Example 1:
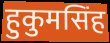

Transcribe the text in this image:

हुकुमसिंह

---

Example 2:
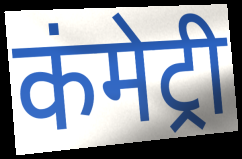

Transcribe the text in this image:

कंमेट्री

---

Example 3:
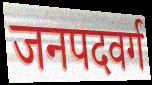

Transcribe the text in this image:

जनपदवर्ग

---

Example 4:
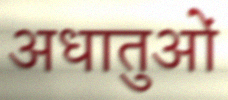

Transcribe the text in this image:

अधातुओं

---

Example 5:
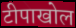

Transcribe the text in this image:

टीपाखोल